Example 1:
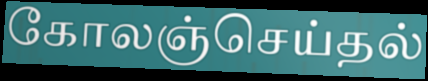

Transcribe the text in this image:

கோலஞ்செய்தல்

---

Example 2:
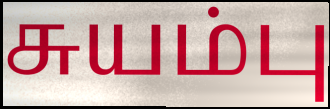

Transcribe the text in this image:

சுயம்பு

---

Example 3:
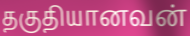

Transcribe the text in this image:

தகுதியானவன்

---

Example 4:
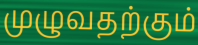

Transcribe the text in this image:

முழுவதற்கும்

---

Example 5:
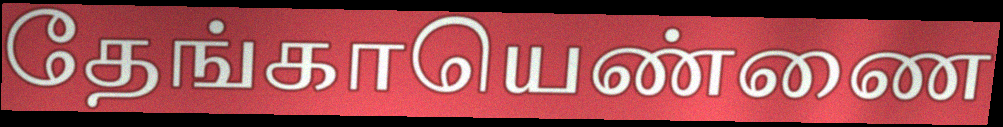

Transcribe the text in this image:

தேங்காயெண்ணை